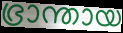
ഭ്രാന്തായ